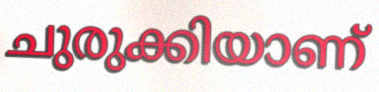
ചുരുക്കിയാണ്